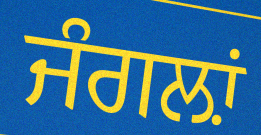
ਜੰਗਲ਼ਾਂ